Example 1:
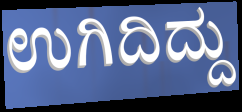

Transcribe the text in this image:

ಉಗಿದಿದ್ದು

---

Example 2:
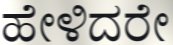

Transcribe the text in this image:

ಹೇಳಿದರೇ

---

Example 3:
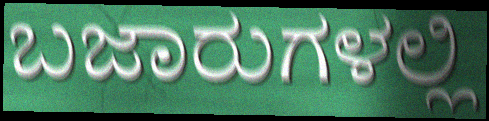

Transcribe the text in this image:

ಬಜಾರುಗಳಲ್ಲಿ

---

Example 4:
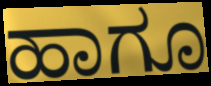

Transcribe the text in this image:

ಹಾಗೂ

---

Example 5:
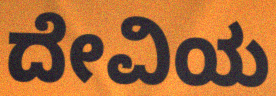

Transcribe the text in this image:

ದೇವಿಯ